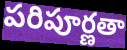
పరిపూర్ణతా